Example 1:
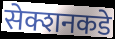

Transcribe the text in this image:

सेक्शनकडे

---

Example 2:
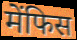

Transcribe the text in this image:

मेंफिस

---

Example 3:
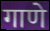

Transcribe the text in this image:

गाणे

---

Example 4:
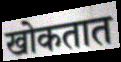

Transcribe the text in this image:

खोकतात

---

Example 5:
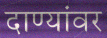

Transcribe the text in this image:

दाण्यांवर